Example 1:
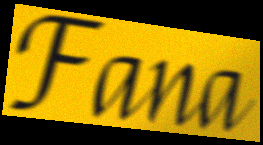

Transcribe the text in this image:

Fana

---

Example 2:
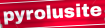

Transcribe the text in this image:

pyrolusite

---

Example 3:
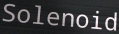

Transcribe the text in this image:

Solenoid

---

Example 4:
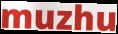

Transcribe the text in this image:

muzhu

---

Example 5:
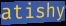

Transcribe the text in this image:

atishy